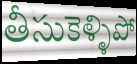
తీసుకెళ్ళిపో